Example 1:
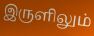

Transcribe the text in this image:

இருளிலும்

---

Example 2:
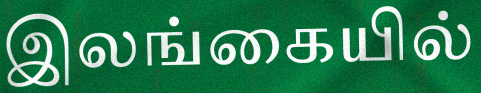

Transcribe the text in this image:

இலங்கையில்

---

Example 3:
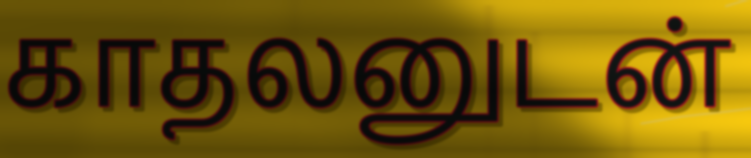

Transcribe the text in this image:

காதலனுடன்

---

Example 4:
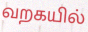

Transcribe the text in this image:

வறகயில்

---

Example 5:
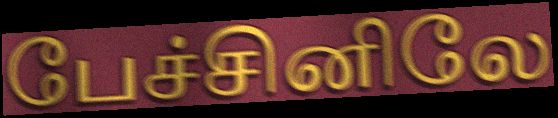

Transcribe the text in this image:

பேச்சினிலே